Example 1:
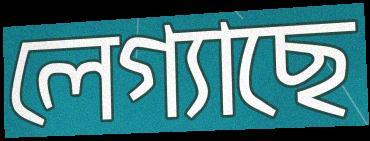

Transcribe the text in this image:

লেগ্যাছে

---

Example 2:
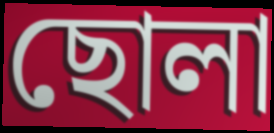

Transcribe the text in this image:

ছোলা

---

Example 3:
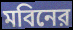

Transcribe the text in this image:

মবিনের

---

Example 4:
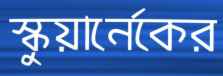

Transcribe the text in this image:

স্কুয়ার্নেকের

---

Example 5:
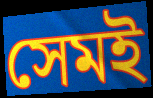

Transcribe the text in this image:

সেমই